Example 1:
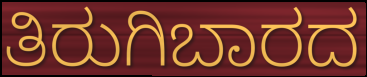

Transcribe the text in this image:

ತಿರುಗಿಬಾರದ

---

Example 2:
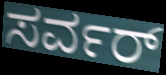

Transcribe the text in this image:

ಸರ್ವರ್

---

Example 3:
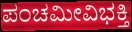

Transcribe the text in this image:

ಪಂಚಮೀವಿಭಕ್ತಿ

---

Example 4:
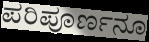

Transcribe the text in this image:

ಪರಿಪೂರ್ಣನೂ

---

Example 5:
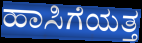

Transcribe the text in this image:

ಹಾಸಿಗೆಯತ್ತ